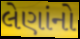
લેણાંનો